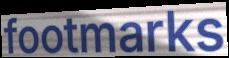
footmarks